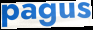
pagus